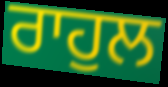
ਰਾਹੁਲ